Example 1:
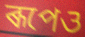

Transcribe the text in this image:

ৰূপেও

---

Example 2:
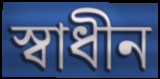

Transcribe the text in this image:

স্বাধীন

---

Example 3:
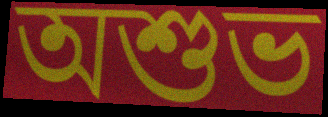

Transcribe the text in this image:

অশুভ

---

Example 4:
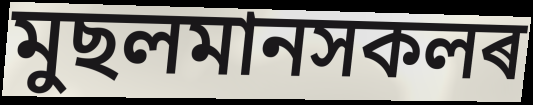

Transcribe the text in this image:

মুছলমানসকলৰ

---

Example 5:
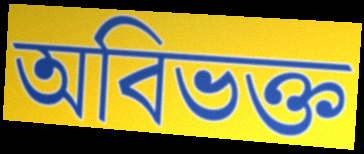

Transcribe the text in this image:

অবিভক্ত